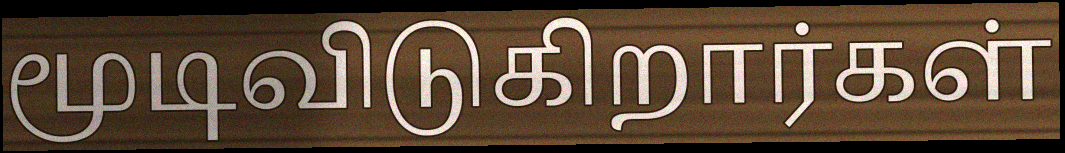
மூடிவிடுகிறார்கள்